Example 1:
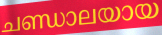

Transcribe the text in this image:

ചണ്ഡാലയായ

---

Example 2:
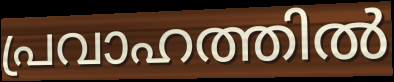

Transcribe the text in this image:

പ്രവാഹത്തിൽ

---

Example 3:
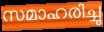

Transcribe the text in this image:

സമാഹരിച്ചു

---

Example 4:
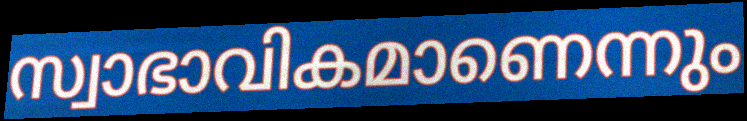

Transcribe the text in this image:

സ്വാഭാവികമാണെന്നും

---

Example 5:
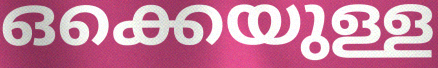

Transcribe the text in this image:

ഒക്കെയുള്ള